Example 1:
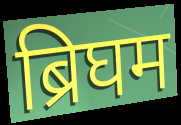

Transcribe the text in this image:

ब्रिघम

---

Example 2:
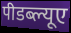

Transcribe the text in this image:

पीडब्ल्यूए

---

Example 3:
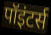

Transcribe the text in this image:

पॉइंटर्स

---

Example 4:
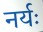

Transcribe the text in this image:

नर्यः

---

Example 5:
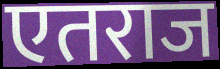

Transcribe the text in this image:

एतराज